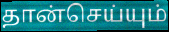
தான்செய்யும்